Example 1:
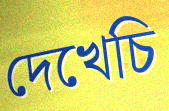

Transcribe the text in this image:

দেখেচি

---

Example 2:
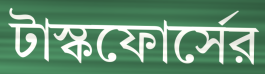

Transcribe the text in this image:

টাস্কফোর্সের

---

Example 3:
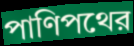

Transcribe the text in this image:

পাণিপথের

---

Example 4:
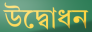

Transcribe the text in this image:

উদ্বোধন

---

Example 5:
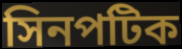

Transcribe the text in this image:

সিনপটিক